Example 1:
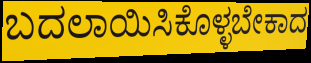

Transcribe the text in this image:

ಬದಲಾಯಿಸಿಕೊಳ್ಳಬೇಕಾದ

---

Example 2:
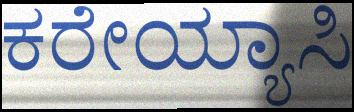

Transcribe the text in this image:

ಕರೇಯ್ಯಾಸಿ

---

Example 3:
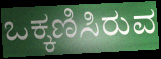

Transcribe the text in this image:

ಒಕ್ಕಣಿಸಿರುವ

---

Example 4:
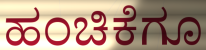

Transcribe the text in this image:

ಹಂಚಿಕೆಗೂ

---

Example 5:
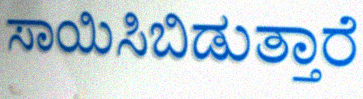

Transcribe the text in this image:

ಸಾಯಿಸಿಬಿಡುತ್ತಾರೆ